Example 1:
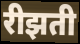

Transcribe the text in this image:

रीझती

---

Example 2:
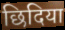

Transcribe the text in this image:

छिदिया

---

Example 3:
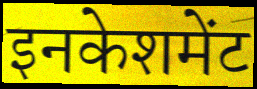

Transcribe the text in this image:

इनकेशमेंट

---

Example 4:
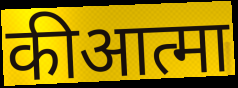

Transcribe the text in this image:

कीआत्मा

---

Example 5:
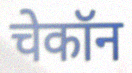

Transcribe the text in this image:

चेकॉन